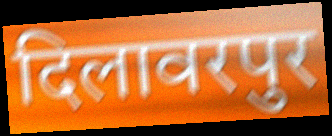
दिलावरपुर